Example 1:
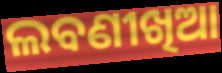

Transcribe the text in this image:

ଲବଣୀଖିଆ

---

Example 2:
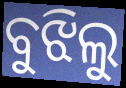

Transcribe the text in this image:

ବୁଝିଲୁ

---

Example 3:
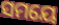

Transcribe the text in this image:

ସମୟେ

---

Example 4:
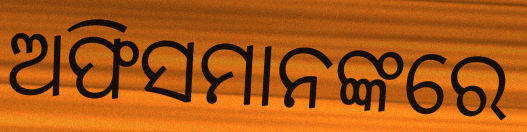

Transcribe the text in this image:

ଅଫିସମାନଙ୍କରେ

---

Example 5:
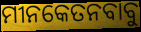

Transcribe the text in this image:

ମୀନକେତନବାବୁ